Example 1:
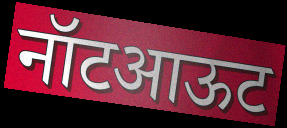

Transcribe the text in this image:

नॉटआऊट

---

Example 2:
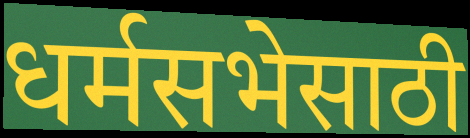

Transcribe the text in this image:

धर्मसभेसाठी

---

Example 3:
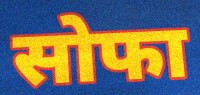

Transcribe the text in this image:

सोफा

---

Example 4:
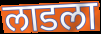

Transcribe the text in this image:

लाडला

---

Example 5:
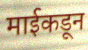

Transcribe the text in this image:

माईकडून